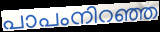
പാപംനിറഞ്ഞ